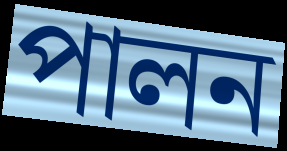
পালন